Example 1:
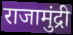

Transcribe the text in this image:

राजामुंद्री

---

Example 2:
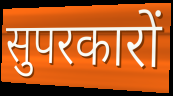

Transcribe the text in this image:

सुपरकारों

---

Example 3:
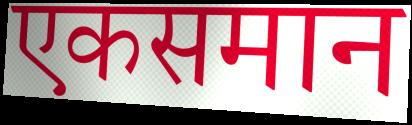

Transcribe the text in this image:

एकसमान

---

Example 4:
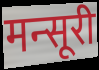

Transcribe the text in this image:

मन्सूरी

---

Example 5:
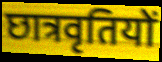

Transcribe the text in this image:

छात्रवृतियों